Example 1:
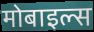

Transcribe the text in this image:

मोबाइल्स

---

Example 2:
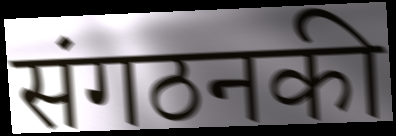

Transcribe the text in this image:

संगठनकी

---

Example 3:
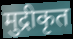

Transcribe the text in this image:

मुद्रीकृत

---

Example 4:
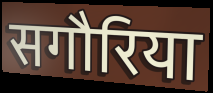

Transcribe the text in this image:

सगौरिया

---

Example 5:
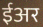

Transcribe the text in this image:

ईअर